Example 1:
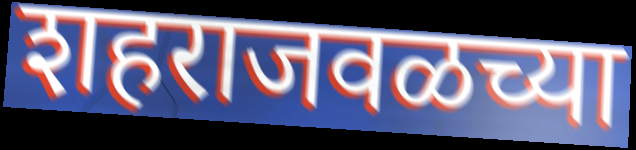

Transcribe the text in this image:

शहराजवळच्या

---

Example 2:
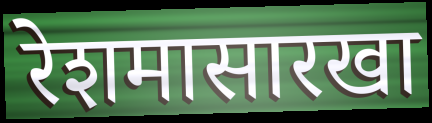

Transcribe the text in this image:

रेशमासारखा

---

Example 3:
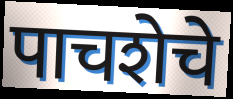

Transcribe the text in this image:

पाचशेचे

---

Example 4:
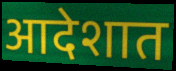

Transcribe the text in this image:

आदेशात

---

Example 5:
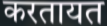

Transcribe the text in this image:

करतायत